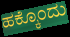
ಹಕ್ಕೊಂದು